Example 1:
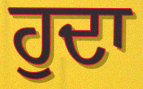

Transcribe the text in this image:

ਹੁਦਾ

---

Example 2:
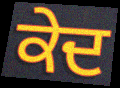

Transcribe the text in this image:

ਕੇਦ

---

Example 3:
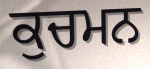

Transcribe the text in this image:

ਕੁਚਮਨ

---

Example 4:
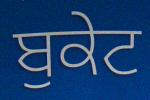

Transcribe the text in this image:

ਬੁਕੇਟ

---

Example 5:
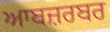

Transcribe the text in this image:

ਆਬਜ਼ਰਬਰ